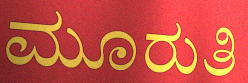
ಮೂರುತಿ